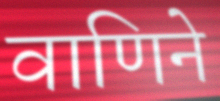
वाणिने